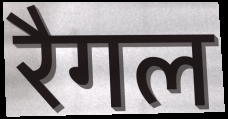
रैगल